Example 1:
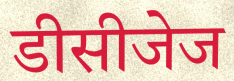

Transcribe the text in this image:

डीसीजेज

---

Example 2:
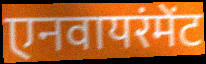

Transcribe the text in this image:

एनवायरंमेंट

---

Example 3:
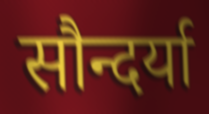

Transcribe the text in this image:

सौन्दर्या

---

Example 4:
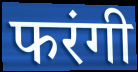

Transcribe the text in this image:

फरंगी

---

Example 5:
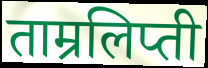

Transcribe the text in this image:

ताम्रलिप्ती